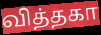
வித்தகா